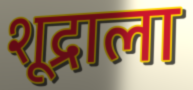
शूद्राला